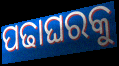
ପଢାଘରକୁ